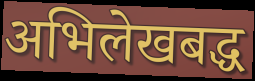
अभिलेखबद्ध